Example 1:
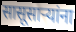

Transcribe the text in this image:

सासूसाऱ्यांना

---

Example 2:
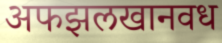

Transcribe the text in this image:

अफझलखानवध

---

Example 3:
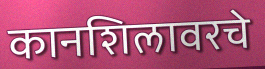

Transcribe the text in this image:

कानशिलावरचे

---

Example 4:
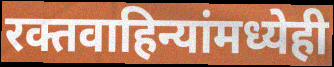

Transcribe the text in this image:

रक्तवाहिन्यांमध्येही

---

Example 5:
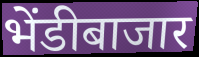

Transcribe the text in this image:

भेंडीबाजार